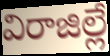
విరాజిల్లే